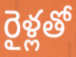
రైళ్లతో